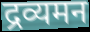
द्रव्यमन